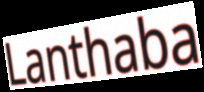
Lanthaba